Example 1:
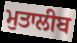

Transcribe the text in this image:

ਮੁਤਾਲੀਬ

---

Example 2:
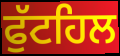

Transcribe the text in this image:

ਫੁੱਟਹਿਲ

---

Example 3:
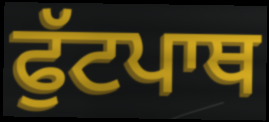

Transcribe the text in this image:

ਫੁੱਟਪਾਥ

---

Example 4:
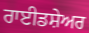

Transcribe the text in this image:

ਰਾਈਡਸ਼ੇਅਰ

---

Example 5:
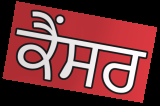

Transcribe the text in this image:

ਕੈੰਸਰ